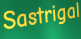
Sastrigal